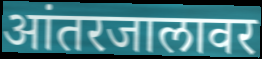
आंतरजालावर